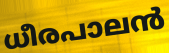
ധീരപാലൻ